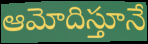
ఆమోదిస్తూనే